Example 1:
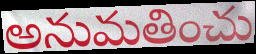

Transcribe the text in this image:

అనుమతించు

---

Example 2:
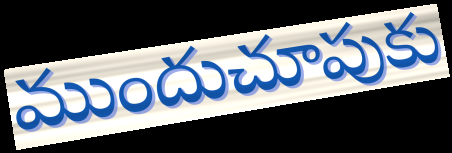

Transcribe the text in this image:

ముందుచూపుకు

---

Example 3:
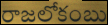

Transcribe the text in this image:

రాజలోకంబు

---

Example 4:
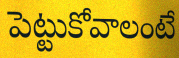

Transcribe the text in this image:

పెట్టుకోవాలంటే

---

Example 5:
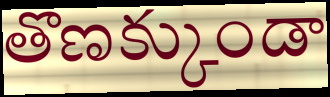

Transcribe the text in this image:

తొణక్కుండా